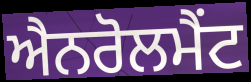
ਐਨਰੋਲਮੈਂਟ